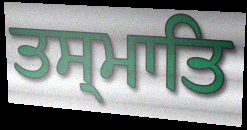
ਤਸ੍ਮਾਤਿ